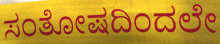
ಸಂತೋಷದಿಂದಲೇ